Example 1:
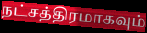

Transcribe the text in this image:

நட்சத்திரமாகவும்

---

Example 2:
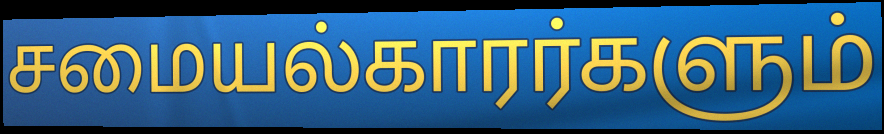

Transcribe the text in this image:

சமையல்காரர்களும்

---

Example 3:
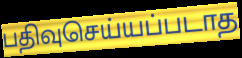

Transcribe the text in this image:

பதிவுசெய்யப்படாத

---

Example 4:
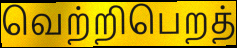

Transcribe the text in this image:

வெற்றிபெறத்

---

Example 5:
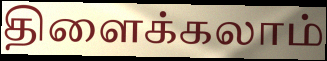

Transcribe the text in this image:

திளைக்கலாம்